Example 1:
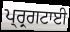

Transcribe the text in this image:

ਪ੍ਰ੍ਰਗਟਾਈ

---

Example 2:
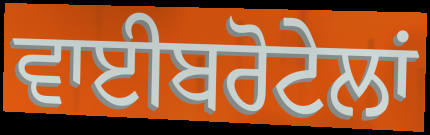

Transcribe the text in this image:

ਵਾਈਬਰੋਟੇਲਾਂ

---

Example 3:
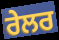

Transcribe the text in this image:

ਰੇਲਰ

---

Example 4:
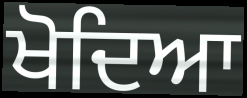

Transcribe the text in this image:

ਖੋਦਿਆ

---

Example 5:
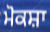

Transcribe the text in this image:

ਮੋਕਸ਼ਾ